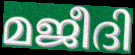
മജീദി